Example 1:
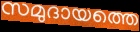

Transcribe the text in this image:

സമുദായത്തെ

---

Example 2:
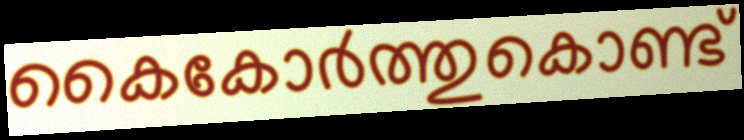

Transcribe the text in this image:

കൈകോർത്തുകൊണ്ട്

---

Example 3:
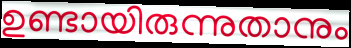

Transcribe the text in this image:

ഉണ്ടായിരുന്നുതാനും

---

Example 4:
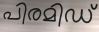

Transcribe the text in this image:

പിരമിഡ്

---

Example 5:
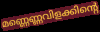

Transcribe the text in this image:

മണ്ണെണ്ണവിളക്കിന്റെ